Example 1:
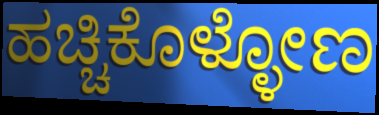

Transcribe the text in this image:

ಹಚ್ಚಿಕೊಳ್ಳೋಣ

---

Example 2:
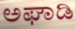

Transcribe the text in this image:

ಅಘಾಡಿ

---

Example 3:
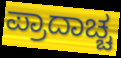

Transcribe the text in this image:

ಪ್ರಾದಾಚ್ಚ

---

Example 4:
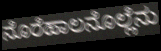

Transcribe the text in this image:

ನೊರೆಹಾಲನೊಲ್ಲೆನು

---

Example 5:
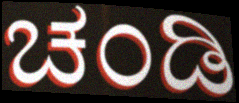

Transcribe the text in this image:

ಚಂಡಿ